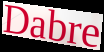
Dabre